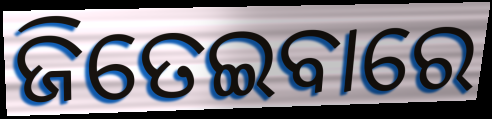
ଜିତେଇବାରେ